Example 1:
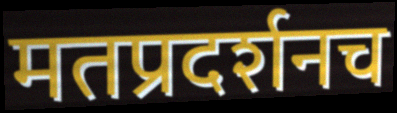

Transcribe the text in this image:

मतप्रदर्शनच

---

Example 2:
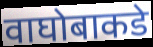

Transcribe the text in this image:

वाघोबाकडे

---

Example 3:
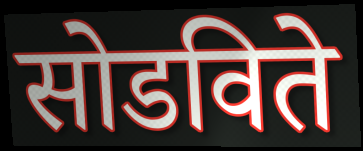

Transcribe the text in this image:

सोडविते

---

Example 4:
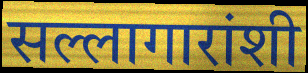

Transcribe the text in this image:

सल्लागारांशी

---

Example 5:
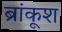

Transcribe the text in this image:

ब्रांकूश